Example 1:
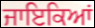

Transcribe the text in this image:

ਜਾਇਕਿਆਂ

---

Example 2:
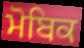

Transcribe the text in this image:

ਮੋਬਿਕ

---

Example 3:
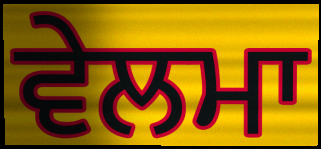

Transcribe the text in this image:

ਵੇਲਮਾ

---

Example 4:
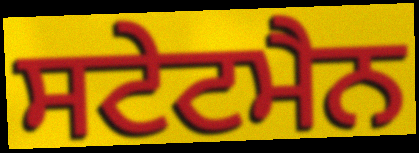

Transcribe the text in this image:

ਸਟੇਟਮੈਨ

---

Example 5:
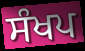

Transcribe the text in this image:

ਸੰਖਪ